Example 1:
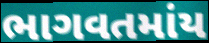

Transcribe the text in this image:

ભાગવતમાંય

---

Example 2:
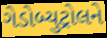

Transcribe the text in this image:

ગેડોબ્યુટ્રોલને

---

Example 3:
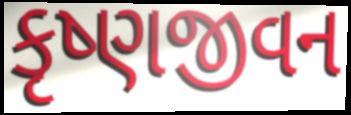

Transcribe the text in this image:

કૃષ્ણજીવન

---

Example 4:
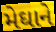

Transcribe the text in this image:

મેઘાને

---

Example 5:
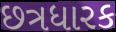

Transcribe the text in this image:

છત્રધારક